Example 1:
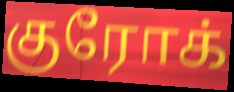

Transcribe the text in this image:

குரோக்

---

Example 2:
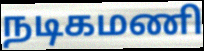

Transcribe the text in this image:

நடிகமணி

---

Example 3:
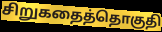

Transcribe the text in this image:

சிறுகதைத்தொகுதி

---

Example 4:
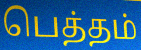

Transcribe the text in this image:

பெத்தம்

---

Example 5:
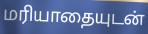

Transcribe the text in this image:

மரியாதையுடன்